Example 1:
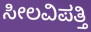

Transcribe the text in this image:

ಸೀಲವಿಪತ್ತಿ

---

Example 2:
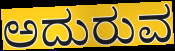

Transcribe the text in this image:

ಅದುರುವ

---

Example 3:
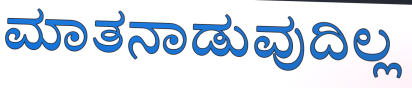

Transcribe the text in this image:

ಮಾತನಾಡುವುದಿಲ್ಲ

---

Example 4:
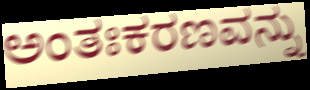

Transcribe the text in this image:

ಅಂತಃಕರಣವನ್ನು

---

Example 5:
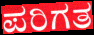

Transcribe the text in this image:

ಪರಿಗತ